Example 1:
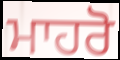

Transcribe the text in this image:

ਮਾਹਰੋ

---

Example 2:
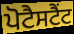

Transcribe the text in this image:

ਪੋਟੈਸਟੈਂਟ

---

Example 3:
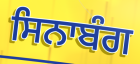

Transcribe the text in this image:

ਸਿਨਾਬੰਗ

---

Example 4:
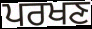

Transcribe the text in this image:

ਪਰਖਣ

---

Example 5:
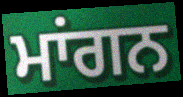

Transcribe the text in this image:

ਮਾਂਗਨ